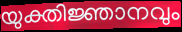
യുക്തിജ്ഞാനവും